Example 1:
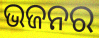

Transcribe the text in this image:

ଭଜନର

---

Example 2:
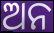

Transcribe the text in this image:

ଅନ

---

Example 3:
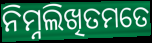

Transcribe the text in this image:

ନିମ୍ନଲିଖିତମତେ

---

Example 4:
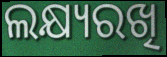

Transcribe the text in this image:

ଲକ୍ଷ୍ୟରଖି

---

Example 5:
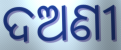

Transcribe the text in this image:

ଦଅଣୀ